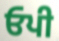
ਓਪੀ